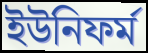
ইউনিফৰ্ম